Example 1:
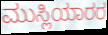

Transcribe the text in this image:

ಮುಸ್ಲಿಯಾರರ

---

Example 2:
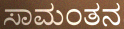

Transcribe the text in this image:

ಸಾಮಂತನ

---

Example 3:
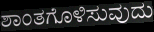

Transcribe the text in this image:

ಶಾಂತಗೊಳಿಸುವುದು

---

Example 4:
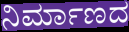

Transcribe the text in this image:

ನಿರ್ಮಾಣದ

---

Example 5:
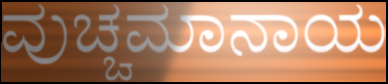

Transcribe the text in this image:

ವುಚ್ಚಮಾನಾಯ